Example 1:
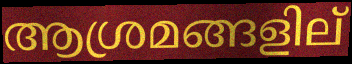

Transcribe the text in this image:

ആശ്രമങ്ങളില്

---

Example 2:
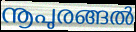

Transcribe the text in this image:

നൂപുരങ്ങൽ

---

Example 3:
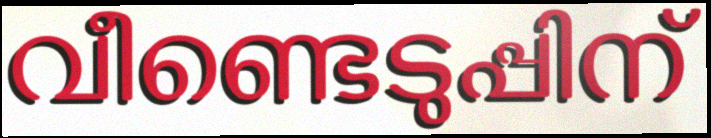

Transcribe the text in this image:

വീണ്ടെടുപ്പിന്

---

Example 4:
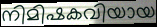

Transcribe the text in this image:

നിമിഷകവിയായ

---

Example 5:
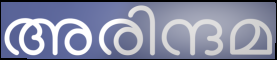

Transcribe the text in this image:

അരിന്ദമ